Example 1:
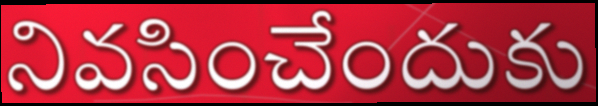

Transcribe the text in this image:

నివసించేందుకు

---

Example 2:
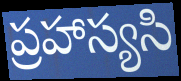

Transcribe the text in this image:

ప్రహాస్యసి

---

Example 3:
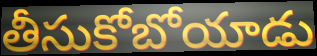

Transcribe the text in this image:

తీసుకోబోయాడు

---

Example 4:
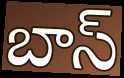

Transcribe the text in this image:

బాస్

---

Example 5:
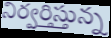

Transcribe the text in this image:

నిర్వర్తిస్తున్న